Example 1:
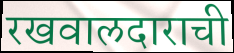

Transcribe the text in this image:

रखवालदाराची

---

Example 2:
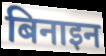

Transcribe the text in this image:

बिनाइन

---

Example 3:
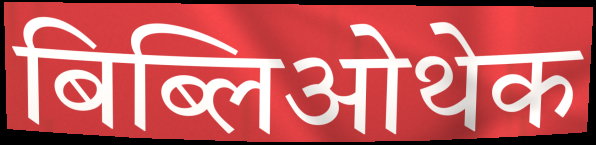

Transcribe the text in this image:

बिब्लिओथेक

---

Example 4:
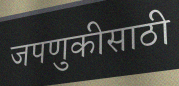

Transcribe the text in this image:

जपणुकीसाठी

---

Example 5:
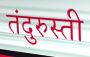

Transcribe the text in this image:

तंदुरुस्ती